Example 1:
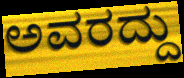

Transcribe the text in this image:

ಅವರದ್ದು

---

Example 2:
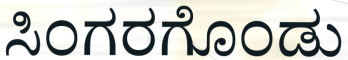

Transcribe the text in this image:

ಸಿಂಗರಗೊಂಡು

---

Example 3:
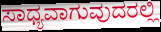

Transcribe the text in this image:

ಸಾಧ್ಯವಾಗುವುದರಲ್ಲಿ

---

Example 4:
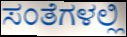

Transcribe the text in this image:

ಸಂತೆಗಳಲ್ಲಿ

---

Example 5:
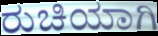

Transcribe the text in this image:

ರುಚಿಯಾಗಿ